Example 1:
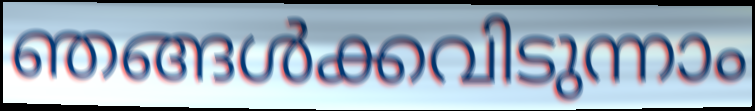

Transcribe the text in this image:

ഞങ്ങൾക്കവിടുന്നാം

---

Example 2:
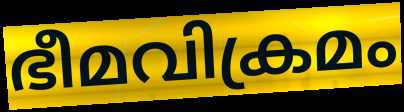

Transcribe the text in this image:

ഭീമവിക്രമം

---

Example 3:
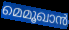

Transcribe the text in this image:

മെമൂഖാൻ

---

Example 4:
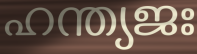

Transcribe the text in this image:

ഹന്ത്യജഃ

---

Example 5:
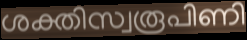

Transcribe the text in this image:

ശക്തിസ്വരൂപിണി